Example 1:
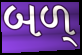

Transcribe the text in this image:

બળ્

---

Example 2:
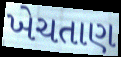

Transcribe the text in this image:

ખેચતાણ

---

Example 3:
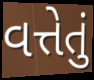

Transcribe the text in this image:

વત્તેતું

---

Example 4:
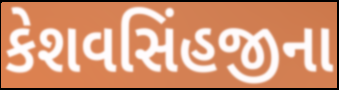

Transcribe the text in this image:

કેશવસિંહજીના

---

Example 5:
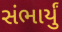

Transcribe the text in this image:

સંભાર્યું